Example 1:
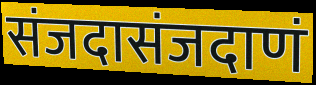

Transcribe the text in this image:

संजदासंजदाणं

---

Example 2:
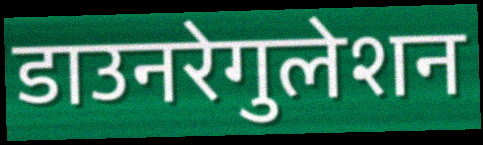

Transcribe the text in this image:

डाउनरेगुलेशन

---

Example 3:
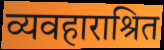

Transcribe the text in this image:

व्यवहाराश्रित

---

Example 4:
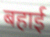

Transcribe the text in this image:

बहाई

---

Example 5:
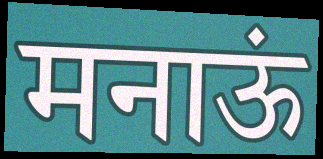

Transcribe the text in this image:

मनाऊं